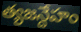
త్యజన్దేహం